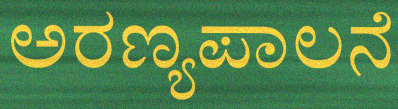
ಅರಣ್ಯಪಾಲನೆ